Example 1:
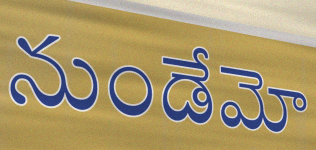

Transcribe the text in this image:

నుండేమో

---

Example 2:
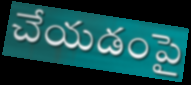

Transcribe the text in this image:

చేయడంపై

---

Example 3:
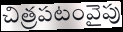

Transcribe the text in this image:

చిత్రపటంవైపు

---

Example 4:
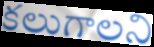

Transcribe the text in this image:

కలుగాలని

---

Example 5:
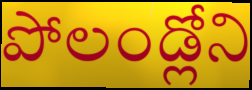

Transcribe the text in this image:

పోలండ్లోని